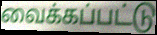
வைக்கப்பட்டு